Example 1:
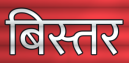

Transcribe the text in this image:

बिस्‍तर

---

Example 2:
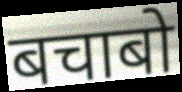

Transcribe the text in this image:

बचाबो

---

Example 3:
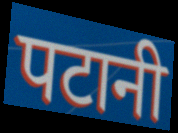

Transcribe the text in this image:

पटानी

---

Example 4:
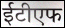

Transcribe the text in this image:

ईटीएफ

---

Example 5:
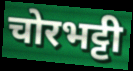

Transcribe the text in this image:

चोरभट्टी